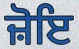
ਜ਼ੋਇ